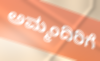
ಅಮ್ಮಂದಿರಿಗೆ